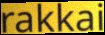
rakkai